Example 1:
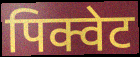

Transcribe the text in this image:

पिक्वेट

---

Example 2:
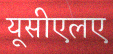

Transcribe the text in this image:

यूसीएलए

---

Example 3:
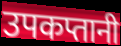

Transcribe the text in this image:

उपकप्तानी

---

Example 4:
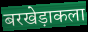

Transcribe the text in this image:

बरखेड़ाकला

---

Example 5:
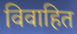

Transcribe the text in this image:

विवाहित